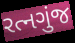
રત્નગુંજ